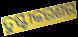
ତୁଷ୍ଟୀକରଣର